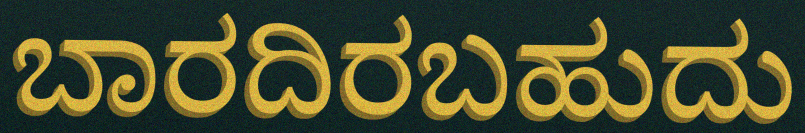
ಬಾರದಿರಬಹುದು